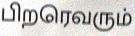
பிறரெவரும்